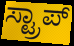
ಸ್ಟ್ರಾಪ್